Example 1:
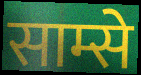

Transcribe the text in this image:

साम्से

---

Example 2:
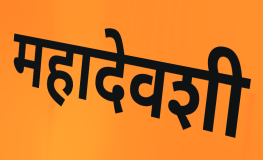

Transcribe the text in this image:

महादेवशी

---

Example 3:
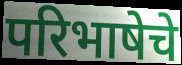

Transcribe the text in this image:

परिभाषेचे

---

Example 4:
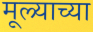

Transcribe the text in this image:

मूल्याच्या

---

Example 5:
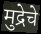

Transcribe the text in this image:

मुद्रेचे